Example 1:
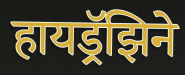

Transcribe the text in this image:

हायड्रॅझिने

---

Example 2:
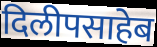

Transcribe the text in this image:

दिलीपसाहेब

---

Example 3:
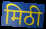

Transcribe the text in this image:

मिठी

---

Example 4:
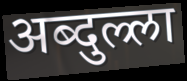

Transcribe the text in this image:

अब्दुल्ला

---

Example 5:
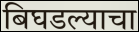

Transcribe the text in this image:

बिघडल्याचा